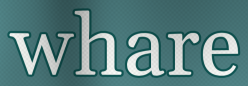
whare